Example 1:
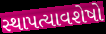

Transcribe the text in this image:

સ્થાપત્યાવશેષો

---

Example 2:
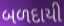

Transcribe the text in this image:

બળદાયી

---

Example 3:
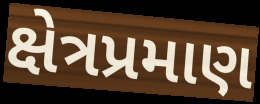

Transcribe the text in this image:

ક્ષેત્રપ્રમાણ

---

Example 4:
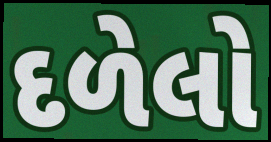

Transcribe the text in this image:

દળેલો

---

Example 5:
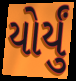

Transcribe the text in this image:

યોર્યું